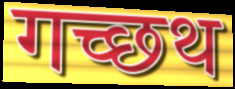
गच्छथ